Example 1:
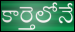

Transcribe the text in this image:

కార్తెలోనే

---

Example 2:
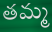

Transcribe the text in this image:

తమ్మ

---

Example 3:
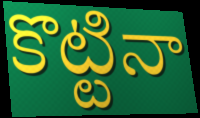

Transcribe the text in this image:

కొట్టినా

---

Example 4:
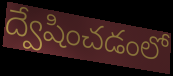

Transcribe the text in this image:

ద్వేషించడంలో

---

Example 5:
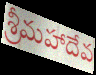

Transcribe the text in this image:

శ్రీమహాదేవ